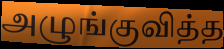
அழுங்குவித்த